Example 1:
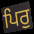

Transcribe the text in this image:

ਪਿਰੁ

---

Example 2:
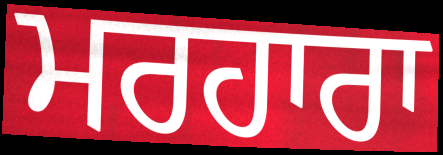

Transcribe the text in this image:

ਮਰਹਾਰਾ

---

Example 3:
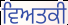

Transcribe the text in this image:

ਵਿਅਤਕੀ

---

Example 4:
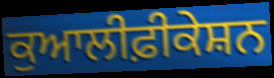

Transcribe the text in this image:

ਕੁਆਲੀਫ਼ੀਕੇਸ਼ਨ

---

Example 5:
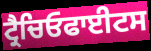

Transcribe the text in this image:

ਟ੍ਰੈਚਿਓਫਾਈਟਸ